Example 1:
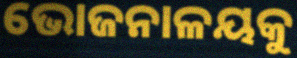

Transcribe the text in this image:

ଭୋଜନାଳୟକୁ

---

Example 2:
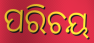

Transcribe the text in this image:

ପରିଚୟ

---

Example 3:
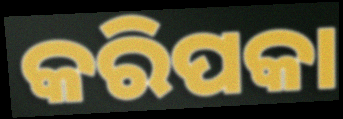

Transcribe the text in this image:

କରିପକା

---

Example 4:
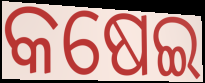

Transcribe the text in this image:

କଷେଇ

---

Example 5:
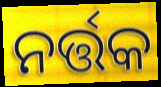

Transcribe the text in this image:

ନର୍ତ୍ତକ